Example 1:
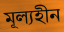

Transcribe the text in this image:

মূল্যহীন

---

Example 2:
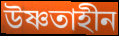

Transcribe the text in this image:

উষ্ণতাহীন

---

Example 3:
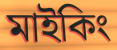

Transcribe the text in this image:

মাইকিং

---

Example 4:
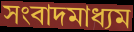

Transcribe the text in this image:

সংবাদমাধ্যম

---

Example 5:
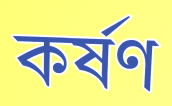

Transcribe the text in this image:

কর্ষণ